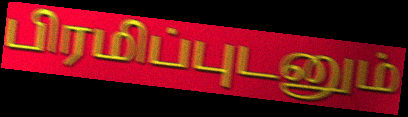
பிரமிப்புடனும்